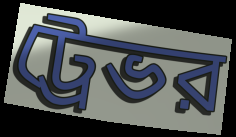
ট্রেভর